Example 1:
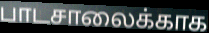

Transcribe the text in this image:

பாடசாலைக்காக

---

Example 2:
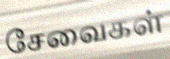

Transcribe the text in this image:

சேவைகள்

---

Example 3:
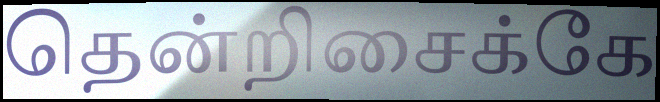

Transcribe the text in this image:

தென்றிசைக்கே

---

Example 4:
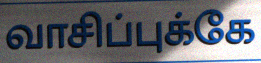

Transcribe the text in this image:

வாசிப்புக்கே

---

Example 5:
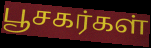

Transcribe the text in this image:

பூசகர்கள்